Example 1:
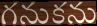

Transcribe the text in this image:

గనుకను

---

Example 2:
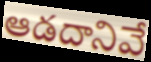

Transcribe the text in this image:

ఆడదానివే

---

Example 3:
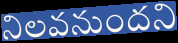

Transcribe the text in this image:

నిలవనుందని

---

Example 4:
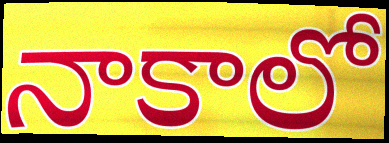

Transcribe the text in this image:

నాకాలో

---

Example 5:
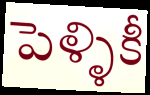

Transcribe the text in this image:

పెళ్ళికీ